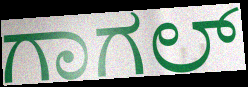
ಗಾಗಲ್